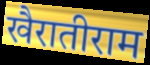
खैरातीराम